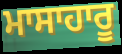
ਮਾਸਾਹਾਰੂ